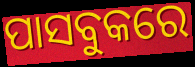
ପାସବୁକରେ